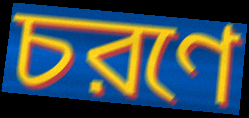
চরণে